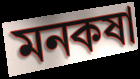
মনকষা